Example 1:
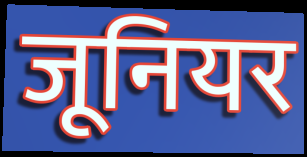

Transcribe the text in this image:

जूनियर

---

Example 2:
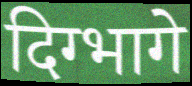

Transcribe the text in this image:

दिग्भागे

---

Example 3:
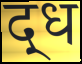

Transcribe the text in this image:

द्ध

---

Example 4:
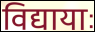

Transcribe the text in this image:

विद्यायाः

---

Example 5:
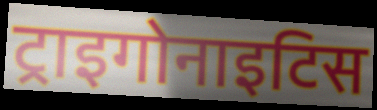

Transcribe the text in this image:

ट्राइगोनाइटिस